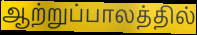
ஆற்றுப்பாலத்தில்